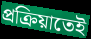
প্রক্রিয়াতেই